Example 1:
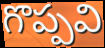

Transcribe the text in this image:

గొప్పవి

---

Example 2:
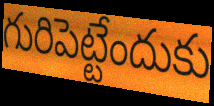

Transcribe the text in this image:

గురిపెట్టేందుకు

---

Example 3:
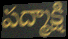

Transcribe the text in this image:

పద్మాక్షి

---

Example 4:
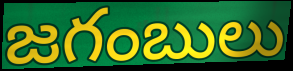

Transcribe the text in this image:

జగంబులు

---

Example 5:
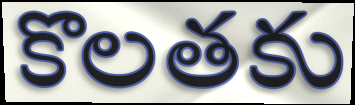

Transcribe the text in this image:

కొలతకు